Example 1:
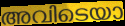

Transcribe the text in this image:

അവിടെയാ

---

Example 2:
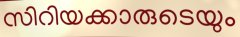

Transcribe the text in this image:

സിറിയക്കാരുടെയും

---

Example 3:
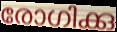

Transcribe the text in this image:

രോഗിക്കു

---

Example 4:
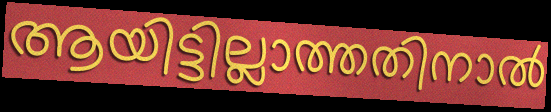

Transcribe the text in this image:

ആയിട്ടില്ലാത്തതിനാൽ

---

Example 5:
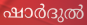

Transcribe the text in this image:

ഷാർദുൽ